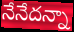
నేనేదన్నా